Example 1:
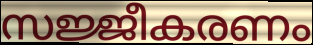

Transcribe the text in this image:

സജ്ജീകരണം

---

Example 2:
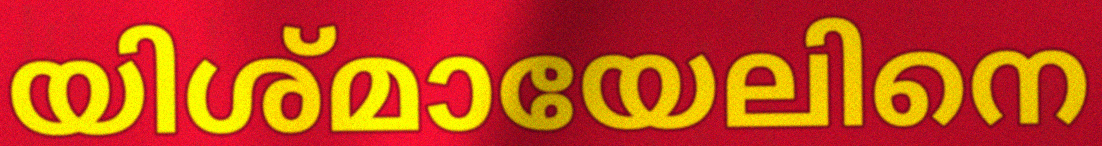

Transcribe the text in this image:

യിശ്മായേലിനെ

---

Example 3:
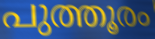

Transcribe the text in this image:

പുത്തൂരം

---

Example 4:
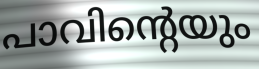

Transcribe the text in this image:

പാവിന്റെയും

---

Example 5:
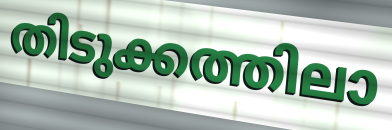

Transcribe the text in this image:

തിടുക്കത്തിലാ